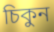
চিকুন